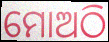
ମୋଅଠି